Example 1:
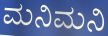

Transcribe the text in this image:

ಮನಿಮನಿ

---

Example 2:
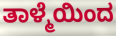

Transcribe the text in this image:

ತಾಳ್ಮೆಯಿಂದ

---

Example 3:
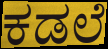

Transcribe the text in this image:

ಕಡಲೆ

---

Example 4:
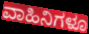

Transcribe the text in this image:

ವಾಹಿನಿಗಳೂ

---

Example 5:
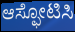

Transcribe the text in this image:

ಆಸ್ಫೋಟಿಸಿ